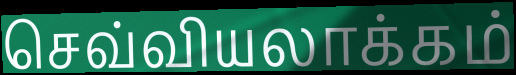
செவ்வியலாக்கம்